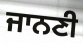
ਜਾਨਣੀ